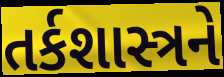
તર્કશાસ્ત્રને